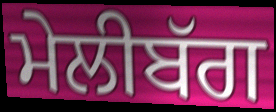
ਮੇਲੀਬੱਗ